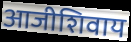
आजीशिवाय